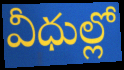
వీధుల్లో